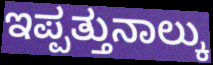
ಇಪ್ಪತ್ತುನಾಲ್ಕು